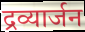
द्रव्यार्जन